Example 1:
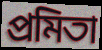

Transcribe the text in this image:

প্রমিতা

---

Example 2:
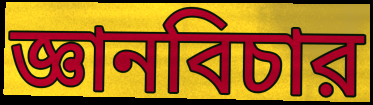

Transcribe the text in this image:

জ্ঞানবিচার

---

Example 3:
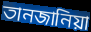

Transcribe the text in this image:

তানজানিয়া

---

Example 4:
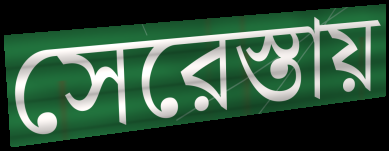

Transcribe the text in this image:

সেরেস্তায়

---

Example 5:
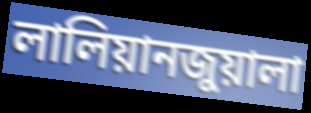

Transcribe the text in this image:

লালিয়ানজুয়ালা